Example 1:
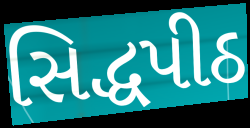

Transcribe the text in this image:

સિદ્ધપીઠ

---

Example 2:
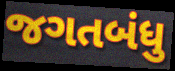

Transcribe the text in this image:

જગતબંધુ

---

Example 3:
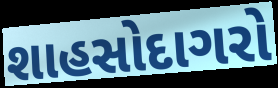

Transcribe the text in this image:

શાહસોદાગરો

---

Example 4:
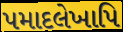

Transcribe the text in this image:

પમાદલેખાપિ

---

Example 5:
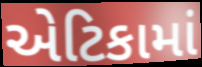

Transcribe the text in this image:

એટિકામાં